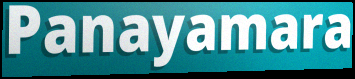
Panayamara